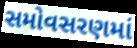
સમોવસરણમાં